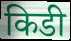
किडी